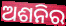
ଅଶନିର